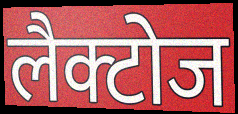
लैक्‍टोज